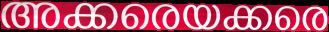
അക്കരെയക്കരെ